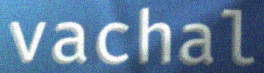
vachal